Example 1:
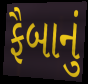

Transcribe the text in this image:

ફૈબાનું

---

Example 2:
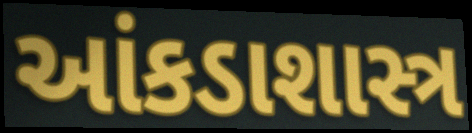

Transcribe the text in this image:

આંકડાશાસ્ત્ર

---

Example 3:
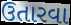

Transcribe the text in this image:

ઉતારવા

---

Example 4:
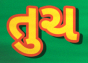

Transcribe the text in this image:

તુચ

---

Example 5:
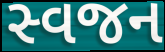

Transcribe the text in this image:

સ્વજન